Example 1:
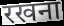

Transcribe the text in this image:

रखना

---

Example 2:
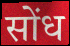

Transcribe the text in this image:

सोंध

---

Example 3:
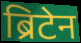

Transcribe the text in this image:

ब्रिटेन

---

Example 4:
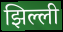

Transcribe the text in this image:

झिल्ली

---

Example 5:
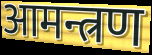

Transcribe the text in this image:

आमन्त्रण